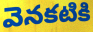
వెనకటికి